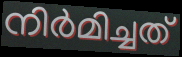
നിർമിച്ചത്